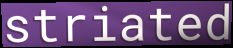
striated